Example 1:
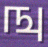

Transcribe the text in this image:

ஙு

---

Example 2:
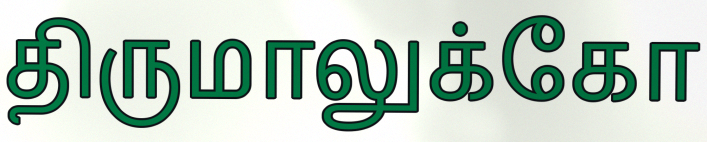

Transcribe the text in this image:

திருமாலுக்கோ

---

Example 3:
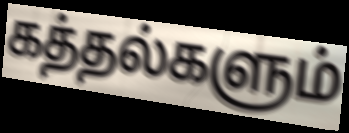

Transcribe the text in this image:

கத்தல்களும்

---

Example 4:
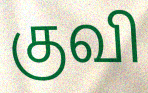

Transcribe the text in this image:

குவி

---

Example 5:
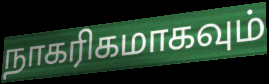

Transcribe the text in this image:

நாகரிகமாகவும்